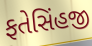
ફતેસિંહજી